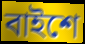
বাইশে